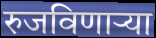
रुजविणाऱ्या